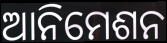
ଆନିମେଶନ